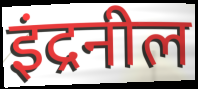
इंद्रनील